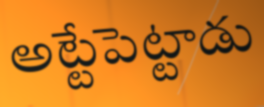
అట్టేపెట్టాడు